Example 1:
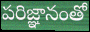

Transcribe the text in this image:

పరిజ్ఞానంతో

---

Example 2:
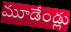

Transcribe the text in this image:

మూడేండ్లు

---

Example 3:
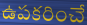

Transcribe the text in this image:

ఉపకరించే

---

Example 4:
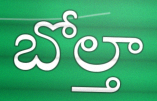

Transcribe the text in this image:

బోల్తా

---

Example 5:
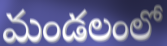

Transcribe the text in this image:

మండలంలో